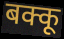
बक्कू